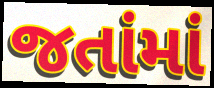
જતાંમાં